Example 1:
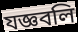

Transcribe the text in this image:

যজ্ঞবলি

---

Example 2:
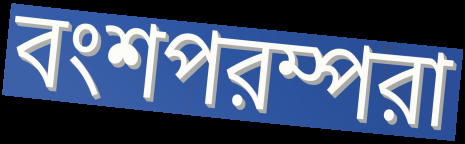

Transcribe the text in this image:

বংশপরম্পরা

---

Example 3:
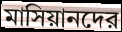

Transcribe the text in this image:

মাসিয়ানদের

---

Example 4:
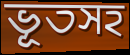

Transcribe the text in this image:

ভূতসহ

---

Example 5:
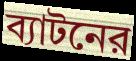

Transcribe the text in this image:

ব্যাটনের